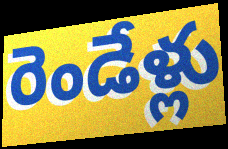
రెండేళ్లు